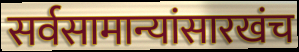
सर्वसामान्यांसारखंच